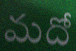
మదో